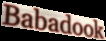
Babadook